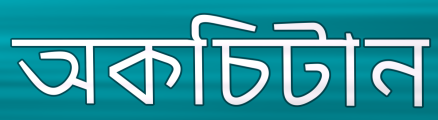
অকচিটান